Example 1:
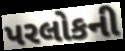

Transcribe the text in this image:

પરલોકની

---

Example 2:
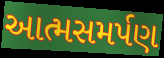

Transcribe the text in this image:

આત્મસમર્પણ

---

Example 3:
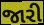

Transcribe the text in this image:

જારી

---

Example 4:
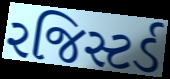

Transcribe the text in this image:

રજિસ્ટર્ડ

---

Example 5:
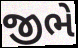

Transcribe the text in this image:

જીભે